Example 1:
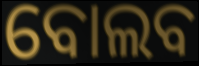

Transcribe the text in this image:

ବୋଲବ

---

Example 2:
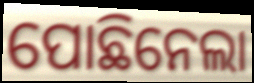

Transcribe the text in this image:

ପୋଛିନେଲା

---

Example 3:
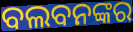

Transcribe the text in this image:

ବଲବନଙ୍କର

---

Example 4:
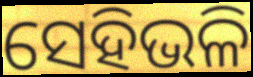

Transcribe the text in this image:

ସେହିଭଳି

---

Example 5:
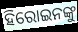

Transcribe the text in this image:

ହିରୋଇନଙ୍କୁ